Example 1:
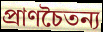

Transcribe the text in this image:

প্রাণচৈতন্য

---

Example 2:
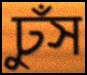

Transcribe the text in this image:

ঢুঁস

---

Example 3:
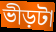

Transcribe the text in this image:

ভীড়টা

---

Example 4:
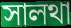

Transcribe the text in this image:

সালথা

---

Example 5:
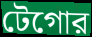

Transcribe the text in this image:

টেগোর